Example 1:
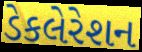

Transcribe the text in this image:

ડેકલેરેશન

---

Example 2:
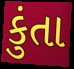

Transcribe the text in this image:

કુંતા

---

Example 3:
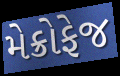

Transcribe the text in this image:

મેક્રોફેજ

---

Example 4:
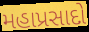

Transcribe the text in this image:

મહાપ્રસાદો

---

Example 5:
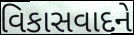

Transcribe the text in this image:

વિકાસવાદને